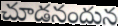
చూడనందున